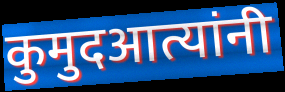
कुमुदआत्यांनी